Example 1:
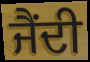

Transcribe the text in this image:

ਜੈਂਦੀ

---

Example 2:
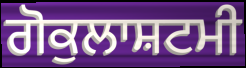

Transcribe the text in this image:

ਗੋਕੁਲਾਸ਼ਟਮੀ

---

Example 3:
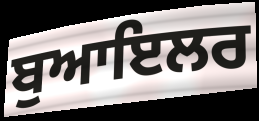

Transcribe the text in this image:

ਬੁਆਇਲਰ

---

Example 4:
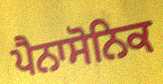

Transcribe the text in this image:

ਪੈਨਾਸੋਨਿਕ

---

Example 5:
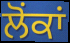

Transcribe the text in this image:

ਲੋਂਕਾਂ